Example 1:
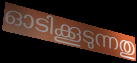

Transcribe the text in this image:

ഓടിക്കൂടുന്നതു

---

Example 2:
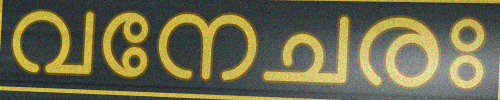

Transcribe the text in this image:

വനേചരഃ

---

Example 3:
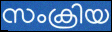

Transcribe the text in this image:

സംക്രിയ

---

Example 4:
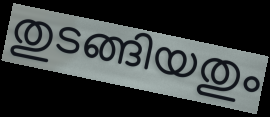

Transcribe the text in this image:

തുടങ്ങിയതും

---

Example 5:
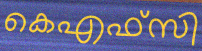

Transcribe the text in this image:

കെഎഫ്സി